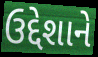
ઉદ્દેશાને